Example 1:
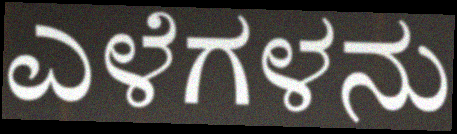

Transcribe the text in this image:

ಎಳೆಗಳನು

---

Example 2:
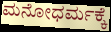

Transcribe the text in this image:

ಮನೋಧರ್ಮಕ್ಕೆ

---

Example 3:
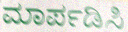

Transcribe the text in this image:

ಮಾರ್ಪಡಿಸಿ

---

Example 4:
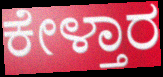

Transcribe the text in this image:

ಕೇಳ್ತಾರ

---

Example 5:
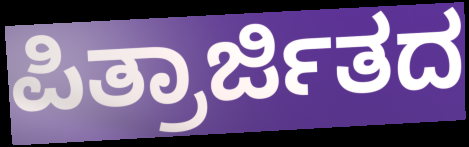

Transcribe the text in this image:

ಪಿತ್ರಾರ್ಜಿತದ